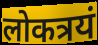
लोकत्रयं